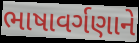
ભાષાવર્ગણાને